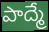
పాద్మే